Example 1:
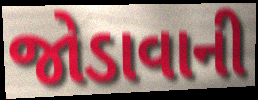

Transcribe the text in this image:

જોડાવાની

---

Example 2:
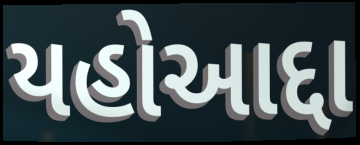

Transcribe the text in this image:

યહોઆદ્દા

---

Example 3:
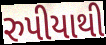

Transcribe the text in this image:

રુપીયાથી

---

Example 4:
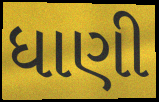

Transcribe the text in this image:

ધાણી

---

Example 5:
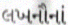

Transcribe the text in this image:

લખનૌનાં